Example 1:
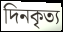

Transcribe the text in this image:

দিনকৃত্য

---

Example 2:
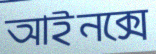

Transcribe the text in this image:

আইনক্সে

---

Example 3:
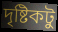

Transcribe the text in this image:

দৃষ্টিকটু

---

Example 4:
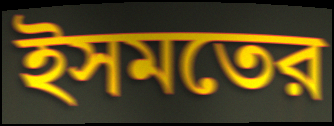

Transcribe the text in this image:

ইসমতের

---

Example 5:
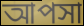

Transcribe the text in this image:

আপসা